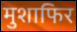
मुशाफिर